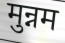
मुन्नम